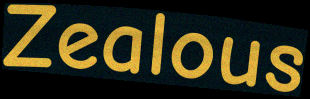
Zealous